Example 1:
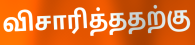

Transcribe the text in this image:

விசாரித்ததற்கு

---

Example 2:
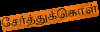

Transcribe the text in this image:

சேர்த்துக்கொள்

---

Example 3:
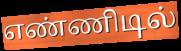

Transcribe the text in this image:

எண்ணிடில்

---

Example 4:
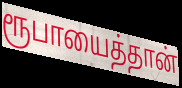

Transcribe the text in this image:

ரூபாயைத்தான்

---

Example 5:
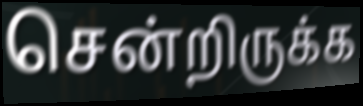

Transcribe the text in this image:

சென்றிருக்க